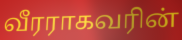
வீரராகவரின்